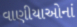
વાણીયાઓનાં